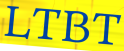
LTBT